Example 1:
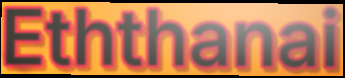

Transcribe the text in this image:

Eththanai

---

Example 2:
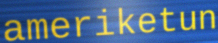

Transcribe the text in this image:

ameriketun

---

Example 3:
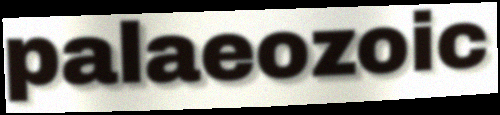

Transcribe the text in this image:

palaeozoic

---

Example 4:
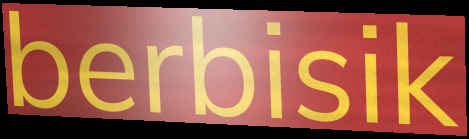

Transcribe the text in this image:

berbisik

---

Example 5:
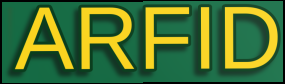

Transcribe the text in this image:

ARFID